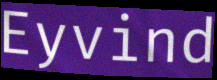
Eyvind